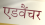
एडवैंचर